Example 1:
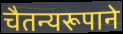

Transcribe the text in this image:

चैतन्यरूपाने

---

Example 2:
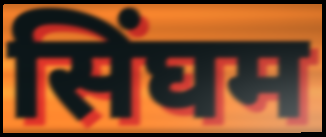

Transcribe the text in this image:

सिंघम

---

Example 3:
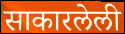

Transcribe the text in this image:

साकारलेली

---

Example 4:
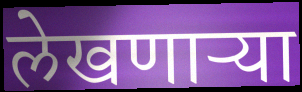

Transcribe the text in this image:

लेखणाऱ्या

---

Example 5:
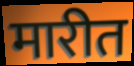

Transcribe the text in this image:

मारीत